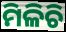
ମିଳିଚି